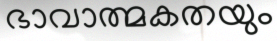
ഭാവാത്മകതയും